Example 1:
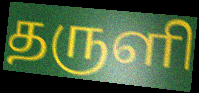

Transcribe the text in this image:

தருளி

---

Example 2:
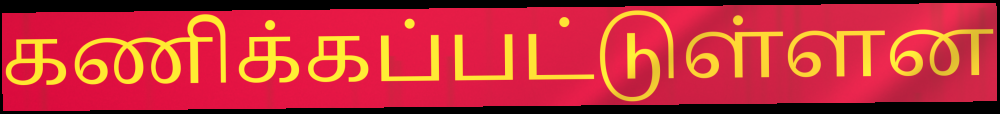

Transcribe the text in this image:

கணிக்கப்பட்டுள்ளன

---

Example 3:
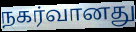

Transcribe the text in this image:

நகர்வானது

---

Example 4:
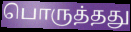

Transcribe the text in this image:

பொருத்தது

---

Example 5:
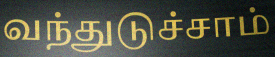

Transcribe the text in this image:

வந்துடுச்சாம்